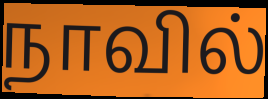
நாவில்